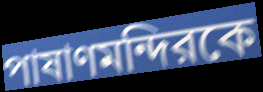
পাষাণমন্দিরকে